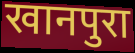
खानपुरा